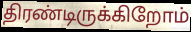
திரண்டிருக்கிறோம்